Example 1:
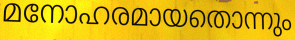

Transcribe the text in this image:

മനോഹരമായതൊന്നും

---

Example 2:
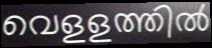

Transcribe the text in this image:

വെളളത്തിൽ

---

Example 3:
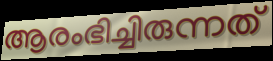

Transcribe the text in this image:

ആരംഭിച്ചിരുന്നത്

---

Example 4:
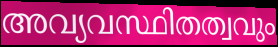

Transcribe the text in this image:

അവ്യവസ്ഥിതത്വവും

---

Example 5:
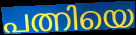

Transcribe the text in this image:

പത്നിയെ